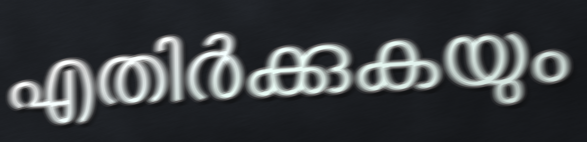
എതിർക്കുകയും